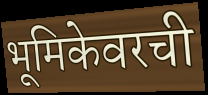
भूमिकेवरची